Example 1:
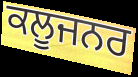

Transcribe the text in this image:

ਕਲੂਜਨਰ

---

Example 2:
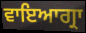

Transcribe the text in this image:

ਵਾਇਆਗ੍ਰਾ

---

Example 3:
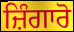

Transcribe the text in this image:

ਜ਼ਿੰਗਾਰੋ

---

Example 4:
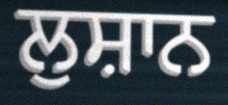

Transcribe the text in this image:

ਲੁਸ਼ਾਨ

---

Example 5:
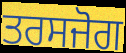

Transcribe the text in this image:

ਤਰਸਜੋਗ